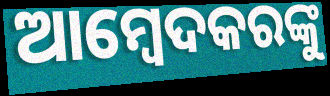
ଆମ୍ବେଦକରଙ୍କୁ